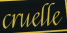
cruelle